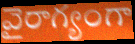
వైరాగ్యంగా